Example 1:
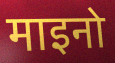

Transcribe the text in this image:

माइनो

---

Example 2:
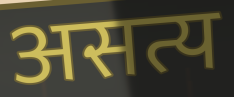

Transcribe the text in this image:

असत्य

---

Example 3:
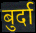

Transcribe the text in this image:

बुर्दा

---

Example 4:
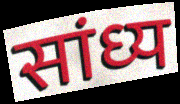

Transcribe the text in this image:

सांध्य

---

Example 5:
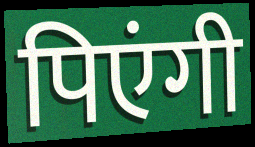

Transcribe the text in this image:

पिएंगी